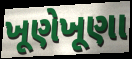
ખૂણેખૂણા